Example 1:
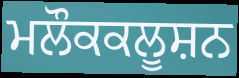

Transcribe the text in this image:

ਮਲੌਕਕਲੂਸ਼ਨ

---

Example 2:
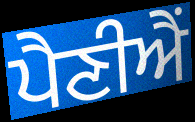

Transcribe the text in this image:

ਪੈਣੀਐਂ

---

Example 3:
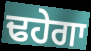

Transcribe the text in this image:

ਢਹੇਗਾ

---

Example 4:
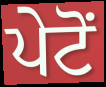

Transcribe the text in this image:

ਪੇਟੋਂ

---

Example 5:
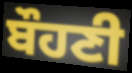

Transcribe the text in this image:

ਬੌਹਣੀ